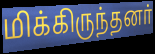
மிக்கிருந்தனர்